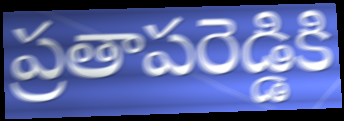
ప్రతాపరెడ్డికి